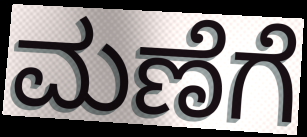
ಮಣೆಗೆ